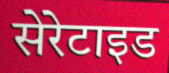
सेरेटाइड